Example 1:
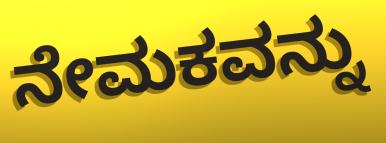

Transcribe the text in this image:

ನೇಮಕವನ್ನು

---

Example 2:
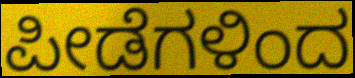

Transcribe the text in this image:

ಪೀಡೆಗಳಿಂದ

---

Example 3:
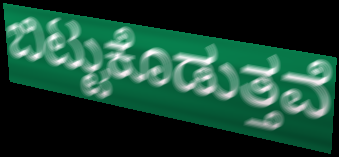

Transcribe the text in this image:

ಬಿಟ್ಟುಕೊಡುತ್ತವೆ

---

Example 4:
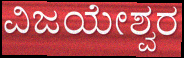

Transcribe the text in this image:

ವಿಜಯೇಶ್ವರ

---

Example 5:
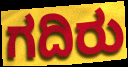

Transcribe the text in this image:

ಗದಿರು